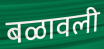
बळावली